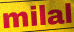
milal